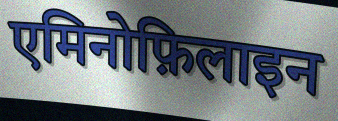
एमिनोफ़िलाइन